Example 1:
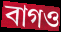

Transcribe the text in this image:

বাগও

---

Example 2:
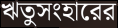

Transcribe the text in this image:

ঋতুসংহারের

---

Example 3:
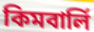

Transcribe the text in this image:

কিমবার্লি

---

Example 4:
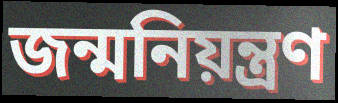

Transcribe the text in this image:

জন্মনিয়ন্ত্রণ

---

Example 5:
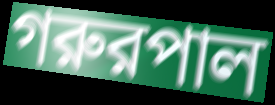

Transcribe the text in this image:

গরুরপাল